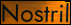
Nostril